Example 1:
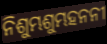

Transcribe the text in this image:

ନିଶୁମ୍ଭଶୁମ୍ଭହନନୀ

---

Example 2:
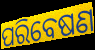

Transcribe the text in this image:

ପରିବେଷଣ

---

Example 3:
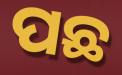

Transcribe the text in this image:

ପଛ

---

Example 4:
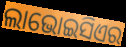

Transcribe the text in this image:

ଲାଭୋଇସିଏର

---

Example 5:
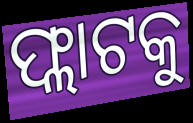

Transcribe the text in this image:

ଫ୍ଲାଟକୁ